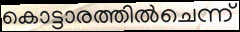
കൊട്ടാരത്തിൽചെന്ന്